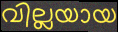
വില്ലയായ